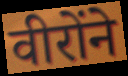
वीरोंने